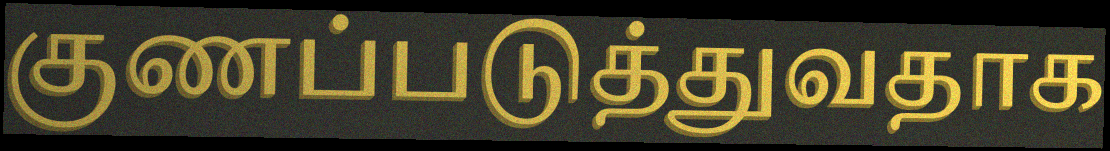
குணப்படுத்துவதாக